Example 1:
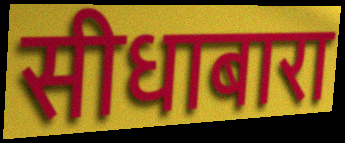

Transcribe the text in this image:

सीधाबारा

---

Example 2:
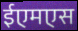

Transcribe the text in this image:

ईएमएस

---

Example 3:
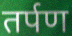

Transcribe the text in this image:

तर्पण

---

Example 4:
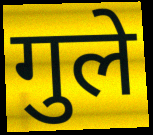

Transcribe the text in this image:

गुले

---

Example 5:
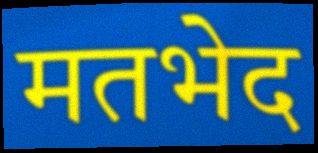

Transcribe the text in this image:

मतभेद